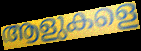
ആളുകളെ